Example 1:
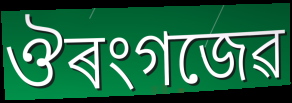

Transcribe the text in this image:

ঔৰংগজেৱ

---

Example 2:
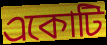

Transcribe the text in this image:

একোটি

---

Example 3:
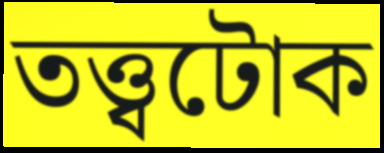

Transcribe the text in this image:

তত্ত্বটোক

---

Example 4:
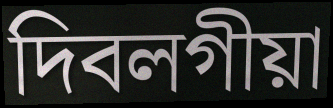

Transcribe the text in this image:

দিবলগীয়া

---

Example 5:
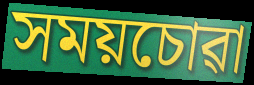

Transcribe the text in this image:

সময়চোৱা